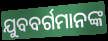
ଯୁବବର୍ଗମାନଙ୍କ